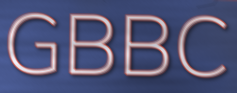
GBBC